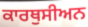
ਕਾਰਥੁਸੀਅਨ